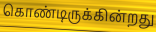
கொண்டிருக்கின்றது